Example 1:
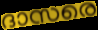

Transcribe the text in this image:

ദാസരെ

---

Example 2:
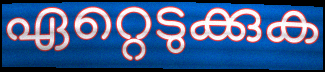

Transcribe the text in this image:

ഏറ്റെടുക്കുക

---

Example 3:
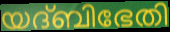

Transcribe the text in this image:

യദ്ബിഭേതി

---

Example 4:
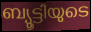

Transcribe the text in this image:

ബ്യൂട്ടിയുടെ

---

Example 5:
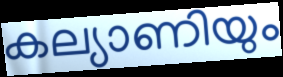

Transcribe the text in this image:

കല്യാണിയും